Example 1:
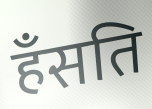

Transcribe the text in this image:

हँसति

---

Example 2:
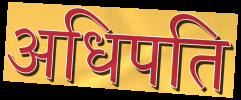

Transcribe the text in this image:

अधिपति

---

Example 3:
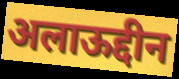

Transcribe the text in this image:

अलाऊद्दीन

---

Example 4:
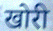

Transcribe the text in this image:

खोरी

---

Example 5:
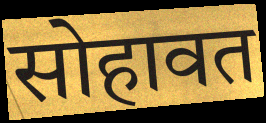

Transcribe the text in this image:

सोहावत